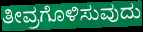
ತೀವ್ರಗೊಳಿಸುವುದು